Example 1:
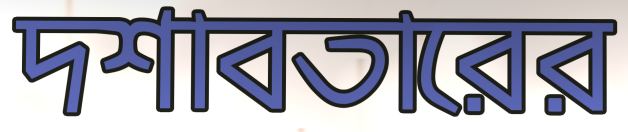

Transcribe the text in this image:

দশাবতারের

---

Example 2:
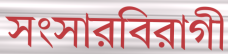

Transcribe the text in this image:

সংসারবিরাগী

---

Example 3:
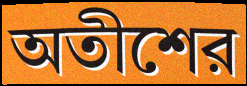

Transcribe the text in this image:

অতীশের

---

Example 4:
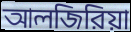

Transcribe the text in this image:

আলজিরিয়া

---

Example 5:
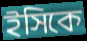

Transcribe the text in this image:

ইসিকে